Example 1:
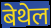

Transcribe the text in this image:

बेथेल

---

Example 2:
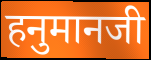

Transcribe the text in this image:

हनुमानजी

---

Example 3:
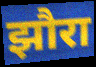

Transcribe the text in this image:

झौरा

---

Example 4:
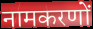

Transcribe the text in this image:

नामकरणों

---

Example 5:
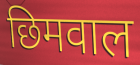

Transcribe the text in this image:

छिमवाल